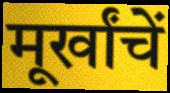
मूर्खांचें